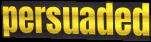
persuaded